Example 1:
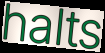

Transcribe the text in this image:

halts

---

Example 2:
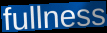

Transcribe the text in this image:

fullness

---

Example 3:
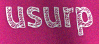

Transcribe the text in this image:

usurp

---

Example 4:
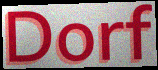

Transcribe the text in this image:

Dorf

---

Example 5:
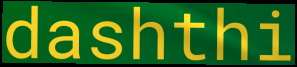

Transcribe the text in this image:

dashthi